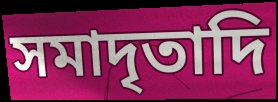
সমাদৃতাদি